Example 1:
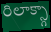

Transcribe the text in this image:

రిలాక్స్గా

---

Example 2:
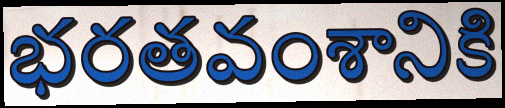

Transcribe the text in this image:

భరతవంశానికి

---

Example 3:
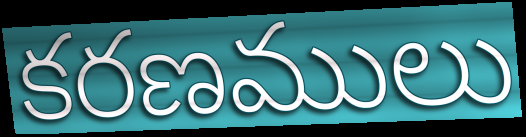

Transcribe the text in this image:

కరణములు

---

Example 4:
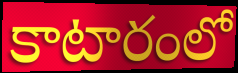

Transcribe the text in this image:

కాటారంలో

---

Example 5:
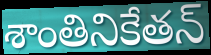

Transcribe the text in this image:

శాంతినికేతన్